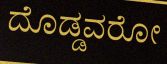
ದೊಡ್ಡವರೋ